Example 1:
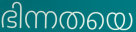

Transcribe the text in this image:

ഭിന്നതയെ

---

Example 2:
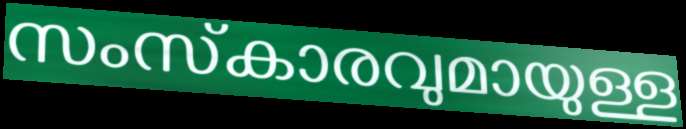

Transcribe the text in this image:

സംസ്‌കാരവുമായുള്ള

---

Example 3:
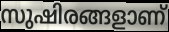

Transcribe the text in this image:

സുഷിരങ്ങളാണ്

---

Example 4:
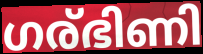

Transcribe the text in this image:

ഗര്ഭിണി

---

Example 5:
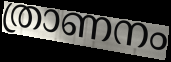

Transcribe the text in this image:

ത്രാണനം